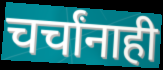
चर्चांनाही